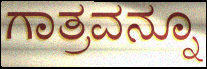
ಗಾತ್ರವನ್ನೂ